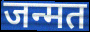
जन्मत